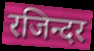
रजिन्दर